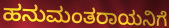
ಹನುಮಂತರಾಯನಿಗೆ